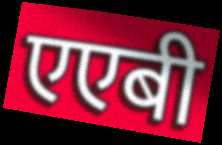
एएबी